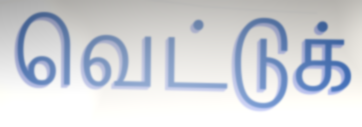
வெட்டுக்